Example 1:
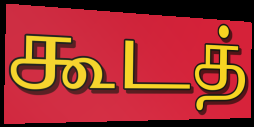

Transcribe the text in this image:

கூடத்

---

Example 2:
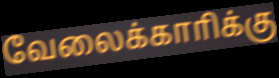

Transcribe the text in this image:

வேலைக்காரிக்கு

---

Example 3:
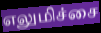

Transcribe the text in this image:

எலுமிச்சை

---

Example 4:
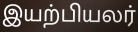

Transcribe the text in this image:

இயற்பியலர்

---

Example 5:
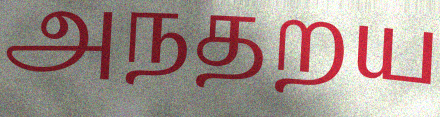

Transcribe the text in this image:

அநதறய